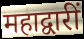
महाद्वारीं